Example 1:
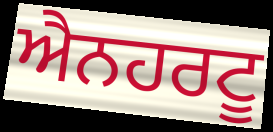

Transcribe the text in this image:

ਐਨਹਰਟੂ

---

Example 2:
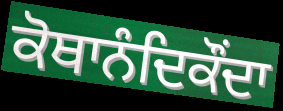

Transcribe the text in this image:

ਕੋਥਾਨੰਦਿਕੌਂਦਾ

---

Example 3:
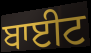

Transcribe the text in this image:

ਬਾਈਟ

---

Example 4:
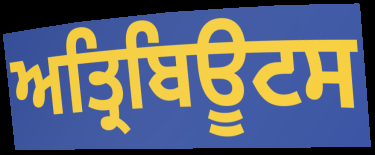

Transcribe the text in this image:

ਅਤ੍ਰਿਬਿਊਟਸ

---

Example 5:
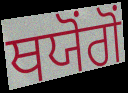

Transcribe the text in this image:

ਥਯੋਂਗੋਂ